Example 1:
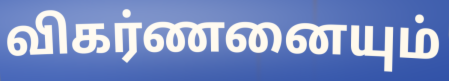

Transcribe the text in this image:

விகர்ணனையும்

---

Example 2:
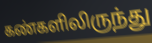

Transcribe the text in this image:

கண்களிலிருந்து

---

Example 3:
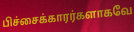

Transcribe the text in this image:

பிச்சைக்காரர்களாகவே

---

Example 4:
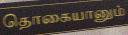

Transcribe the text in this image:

தொகையானும்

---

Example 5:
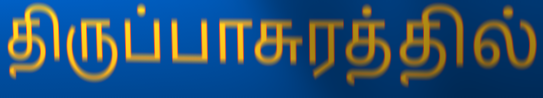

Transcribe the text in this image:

திருப்பாசுரத்தில்